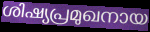
ശിഷ്യപ്രമുഖനായ